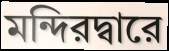
মন্দিরদ্বারে